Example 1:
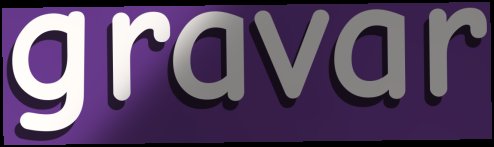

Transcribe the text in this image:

gravar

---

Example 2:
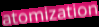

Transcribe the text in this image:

atomization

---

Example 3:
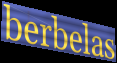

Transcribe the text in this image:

berbelas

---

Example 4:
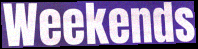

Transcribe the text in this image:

Weekends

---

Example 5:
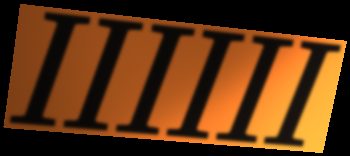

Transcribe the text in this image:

IIIIII